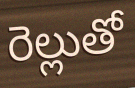
రెల్లుతో